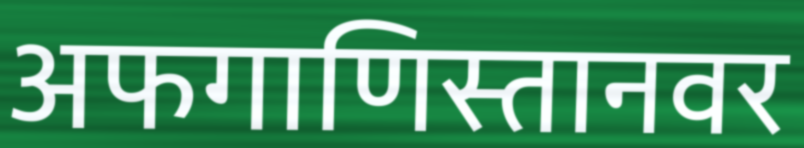
अफगाणिस्तानवर